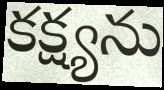
కక్ష్యను